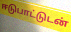
ஈடுபாட்டுடன்